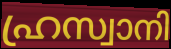
ഹ്രസ്വാനി